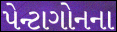
પેન્ટાગોનના